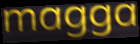
magga